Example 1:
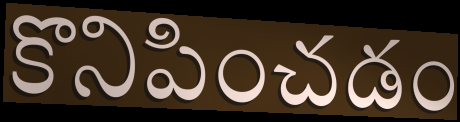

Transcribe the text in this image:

కొనిపించడం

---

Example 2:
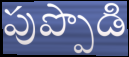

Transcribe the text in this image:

పుప్పొడి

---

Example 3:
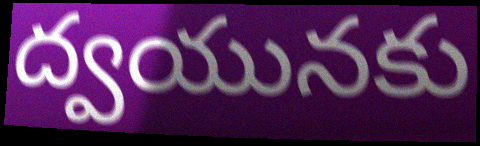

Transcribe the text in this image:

ద్వయునకు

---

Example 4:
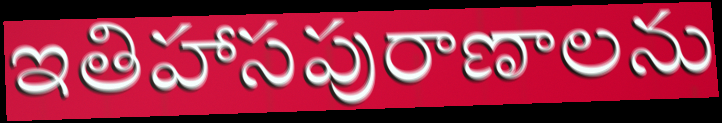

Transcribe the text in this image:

ఇతిహాసపురాణాలను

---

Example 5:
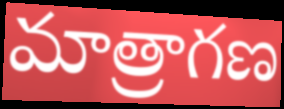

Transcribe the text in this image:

మాత్రాగణ